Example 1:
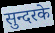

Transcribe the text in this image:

सुन्दरके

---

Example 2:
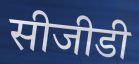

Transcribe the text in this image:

सीजीडी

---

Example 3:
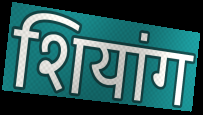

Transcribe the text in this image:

शियांग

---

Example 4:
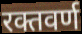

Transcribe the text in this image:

रक्तवर्ण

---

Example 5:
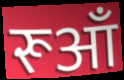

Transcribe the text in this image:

रूआँ